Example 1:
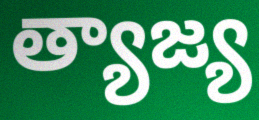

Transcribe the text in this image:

త్యాజ్య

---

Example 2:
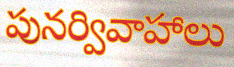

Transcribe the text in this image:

పునర్వివాహాలు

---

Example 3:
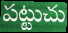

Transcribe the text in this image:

పట్టుచు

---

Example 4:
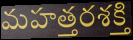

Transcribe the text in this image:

మహత్తరశక్తి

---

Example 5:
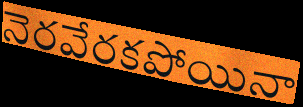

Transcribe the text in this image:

నెరవేరకపోయినా